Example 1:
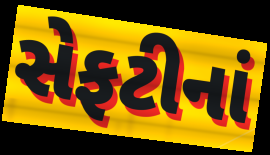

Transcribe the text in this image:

સેફટીનાં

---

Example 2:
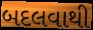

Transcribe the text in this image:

બદલવાથી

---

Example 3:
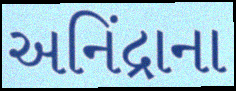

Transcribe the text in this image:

અનિંદ્રાના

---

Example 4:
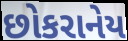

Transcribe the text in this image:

છોકરાનેય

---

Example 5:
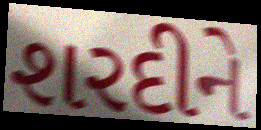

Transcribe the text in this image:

શરદીને